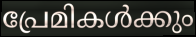
പ്രേമികൾക്കും